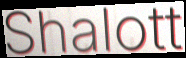
Shalott